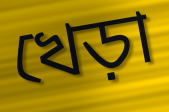
খেড়া